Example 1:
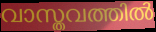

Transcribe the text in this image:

വാസ്തവത്തിൽ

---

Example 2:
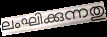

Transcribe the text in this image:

ലംഘിക്കുന്നതു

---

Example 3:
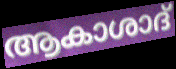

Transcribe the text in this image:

ആകാശാദ്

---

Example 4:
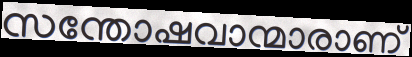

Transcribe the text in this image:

സന്തോഷവാന്മാരാണ്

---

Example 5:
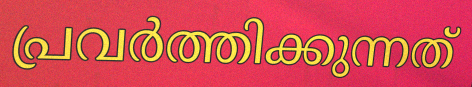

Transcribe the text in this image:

പ്രവർത്തിക്കുന്നത്